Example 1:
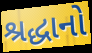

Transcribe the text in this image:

શ્રદ્ધાનો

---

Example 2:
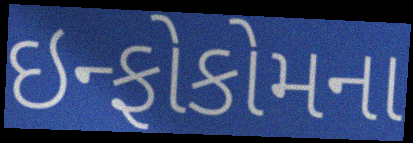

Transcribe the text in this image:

ઇન્ફોકોમના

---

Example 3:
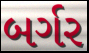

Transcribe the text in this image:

બર્ગર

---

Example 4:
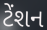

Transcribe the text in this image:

ટેંશન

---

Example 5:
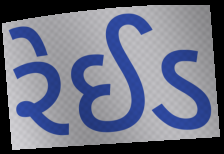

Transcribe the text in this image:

રેઈડ